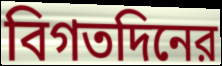
বিগতদিনের